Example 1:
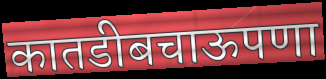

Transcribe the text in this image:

कातडीबचाऊपणा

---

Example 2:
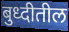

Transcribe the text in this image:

बुध्दीतील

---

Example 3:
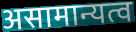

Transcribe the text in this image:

असामान्यत्व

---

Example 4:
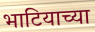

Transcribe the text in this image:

भाटियाच्या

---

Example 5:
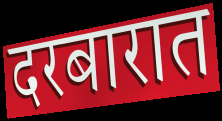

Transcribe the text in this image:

दरबारात